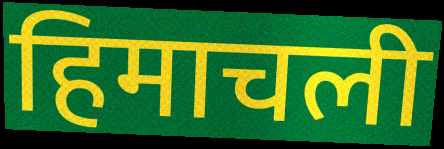
हिमाचली